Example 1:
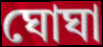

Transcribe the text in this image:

ঘোঘা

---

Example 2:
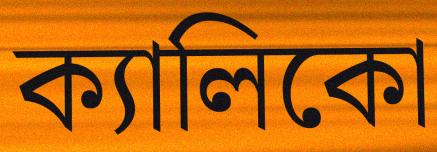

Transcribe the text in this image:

ক্যালিকো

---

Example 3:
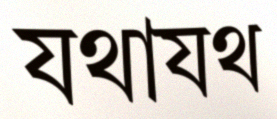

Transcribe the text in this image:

যথাযথ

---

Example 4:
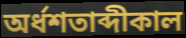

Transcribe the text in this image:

অর্ধশতাব্দীকাল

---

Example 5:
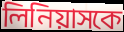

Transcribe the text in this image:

লিনিয়াসকে